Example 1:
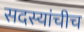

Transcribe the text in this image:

सदस्यांचीच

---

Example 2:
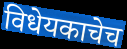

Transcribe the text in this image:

विधेयकाचेच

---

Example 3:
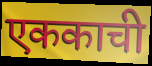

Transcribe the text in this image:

एककाची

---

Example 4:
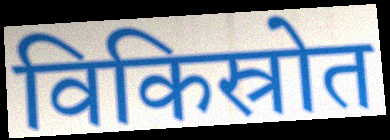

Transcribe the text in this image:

विकिस्रोत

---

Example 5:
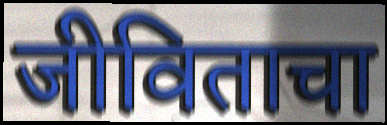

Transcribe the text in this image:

जीविताचा